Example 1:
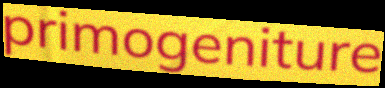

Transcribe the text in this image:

primogeniture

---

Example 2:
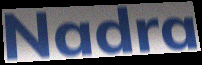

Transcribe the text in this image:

Nadra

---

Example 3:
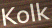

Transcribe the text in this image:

Kolk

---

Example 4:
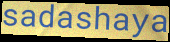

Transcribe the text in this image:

sadashaya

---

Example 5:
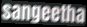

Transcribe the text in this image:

sangeetha